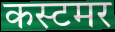
कस्‍टमर